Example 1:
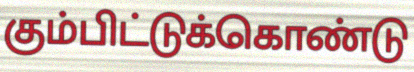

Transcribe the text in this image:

கும்பிட்டுக்கொண்டு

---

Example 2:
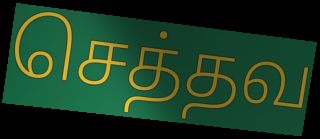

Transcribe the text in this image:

செத்தவ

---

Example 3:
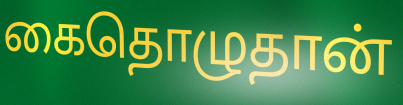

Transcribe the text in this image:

கைதொழுதான்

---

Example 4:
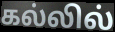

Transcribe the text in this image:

கல்லில்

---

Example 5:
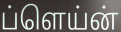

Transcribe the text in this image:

ப்ளெய்ன்